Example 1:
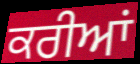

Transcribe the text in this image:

ਕਰੀਆਂ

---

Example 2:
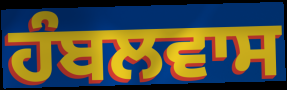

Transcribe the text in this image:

ਹੰਬਲਵਾਸ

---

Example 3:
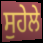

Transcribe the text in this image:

ਸੁਹੇਲੇ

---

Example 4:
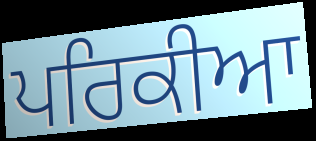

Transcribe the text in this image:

ਪਰਿਕੀਆ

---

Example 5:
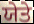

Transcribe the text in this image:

ਯੇਤੇ